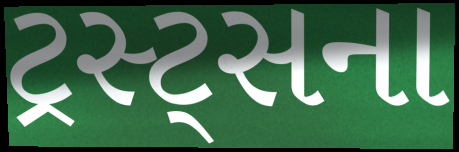
ટ્રસ્ટ્સના